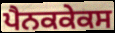
ਪੈਨਕਕੇਕਸ